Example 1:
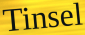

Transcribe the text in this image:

Tinsel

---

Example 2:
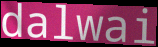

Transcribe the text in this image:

dalwai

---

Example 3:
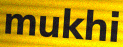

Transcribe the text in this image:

mukhi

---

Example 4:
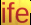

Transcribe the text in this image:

ife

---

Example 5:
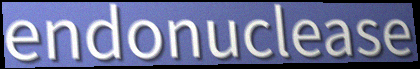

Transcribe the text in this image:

endonuclease